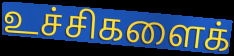
உச்சிகளைக்